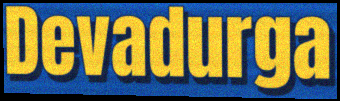
Devadurga